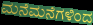
ಮನೆಮನೆಗಳಿಂದ